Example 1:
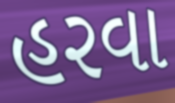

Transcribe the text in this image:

હરવા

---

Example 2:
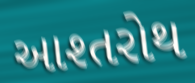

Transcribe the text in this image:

આશ્તરોથ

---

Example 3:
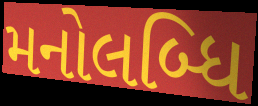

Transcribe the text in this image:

મનોલબ્ધિ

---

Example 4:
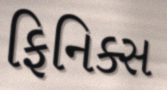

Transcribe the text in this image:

ફિનિક્સ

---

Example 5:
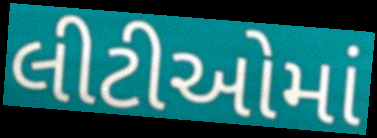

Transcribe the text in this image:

લીટીઓમાં